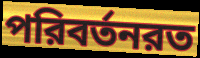
পরিবর্তনরত